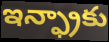
ఇన్ఫ్రాకు